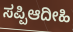
ಸಪ್ಪಿಆದೀಹಿ